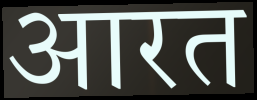
आरत